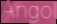
Angol